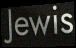
Jewis